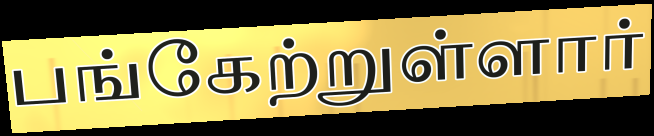
பங்கேற்றுள்ளார்